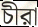
চীরা